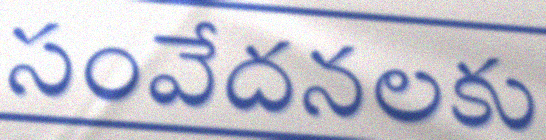
సంవేదనలకు